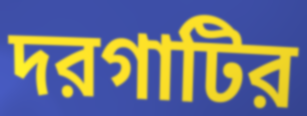
দরগাটির